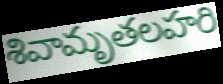
శివామృతలహరి